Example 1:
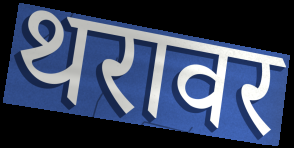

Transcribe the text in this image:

थरावर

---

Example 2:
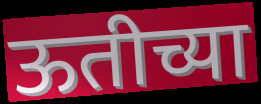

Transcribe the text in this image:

ऊतीच्या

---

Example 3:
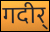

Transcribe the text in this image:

गदीर्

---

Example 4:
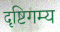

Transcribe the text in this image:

दृष्टिगम्य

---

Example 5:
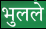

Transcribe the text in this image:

भुलले